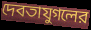
দেবতাযুগলের